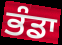
ਭੰਡਾ